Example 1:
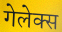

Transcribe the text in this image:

गेलेक्स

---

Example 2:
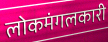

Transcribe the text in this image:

लोकमंगलकारी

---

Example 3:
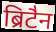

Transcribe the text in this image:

ब्रिटैन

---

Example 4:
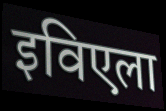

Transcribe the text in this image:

इविएला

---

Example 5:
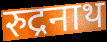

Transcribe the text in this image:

रुद्रनाथ